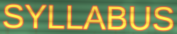
SYLLABUS